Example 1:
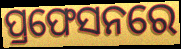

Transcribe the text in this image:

ପ୍ରଫେସନରେ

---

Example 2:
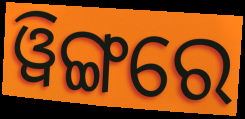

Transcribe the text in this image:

ୱିଙ୍ଗରେ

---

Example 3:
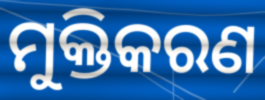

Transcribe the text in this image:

ମୁକ୍ତିକରଣ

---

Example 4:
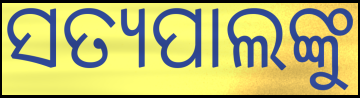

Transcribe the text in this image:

ସତ୍ୟପାଲଙ୍କୁ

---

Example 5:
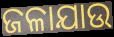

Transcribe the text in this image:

ଜଳାଯାଉ